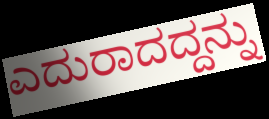
ಎದುರಾದದ್ದನ್ನು